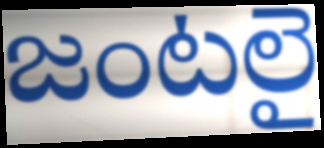
జంటలై